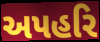
અપહરિ